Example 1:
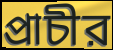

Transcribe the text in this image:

প্রাচীর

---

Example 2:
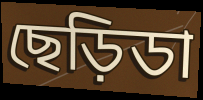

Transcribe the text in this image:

ছেড়িডা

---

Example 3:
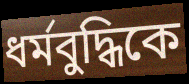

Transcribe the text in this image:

ধর্মবুদ্ধিকে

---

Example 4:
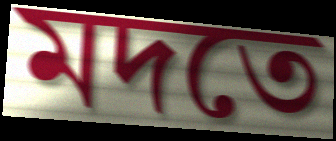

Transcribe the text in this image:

মদতে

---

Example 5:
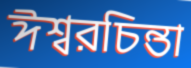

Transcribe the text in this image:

ঈশ্বরচিন্তা